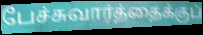
பேச்சுவார்த்தைக்குப்